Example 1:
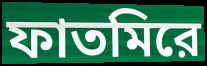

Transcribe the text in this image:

ফাতমিরে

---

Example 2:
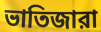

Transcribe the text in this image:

ভাতিজারা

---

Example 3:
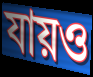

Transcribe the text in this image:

যায়ও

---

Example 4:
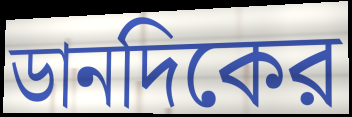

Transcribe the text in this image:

ডানদিকের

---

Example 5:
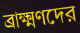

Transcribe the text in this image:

ব্রাক্ষ্মণদের